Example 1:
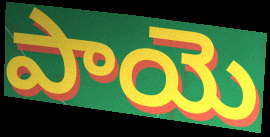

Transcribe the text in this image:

పాయె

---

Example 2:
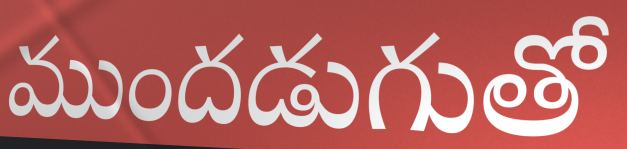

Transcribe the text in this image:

ముందడుగుతో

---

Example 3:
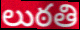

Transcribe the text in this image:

లుఠతి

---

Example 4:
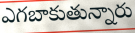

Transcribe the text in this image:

ఎగబాకుతున్నారు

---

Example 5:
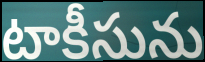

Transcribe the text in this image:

టాకీసును